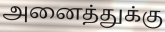
அனைத்துக்கு